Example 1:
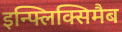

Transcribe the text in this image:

इन्फ्लिक्सिमैब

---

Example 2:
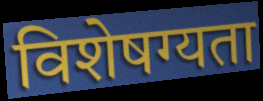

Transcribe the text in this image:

विशेषग्यता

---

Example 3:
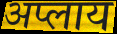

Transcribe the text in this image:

अप्लाय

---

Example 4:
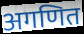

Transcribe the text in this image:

अगणित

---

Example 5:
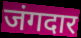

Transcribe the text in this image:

जंगदार